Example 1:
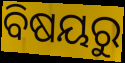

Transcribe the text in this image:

ବିଷୟରୁ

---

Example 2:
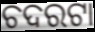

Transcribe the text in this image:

ଚଦରଟା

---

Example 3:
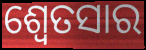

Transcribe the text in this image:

ଶ୍ଵେତସାର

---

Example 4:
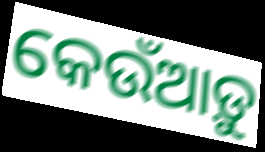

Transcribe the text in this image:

କେଉଁଆଡ଼ୁ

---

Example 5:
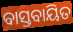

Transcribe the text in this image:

ବାସ୍ତବାୟିତ